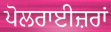
ਪੋਲਰਾਈਜ਼ਰਾਂ